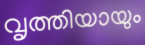
വൃത്തിയായും